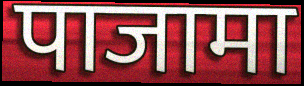
पाजामा